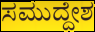
ಸಮುದ್ದೇಶ